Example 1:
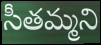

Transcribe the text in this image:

సీతమ్మని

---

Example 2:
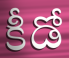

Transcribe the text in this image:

కీడో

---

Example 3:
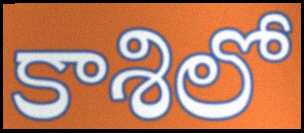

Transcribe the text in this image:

కాశిలో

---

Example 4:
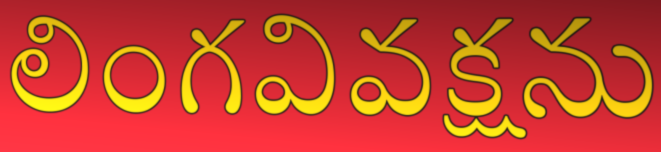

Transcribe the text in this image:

లింగవివక్షను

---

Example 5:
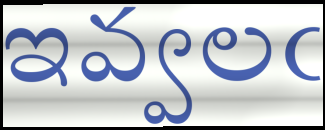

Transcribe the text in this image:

ఇవ్వలఁ